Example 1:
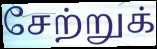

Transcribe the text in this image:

சேற்றுக்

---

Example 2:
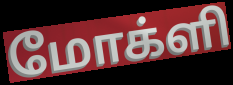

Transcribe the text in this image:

மோக்ளி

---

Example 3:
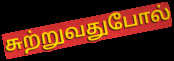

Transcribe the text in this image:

சுற்றுவதுபோல்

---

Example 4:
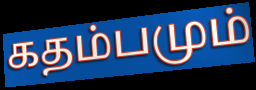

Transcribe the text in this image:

கதம்பமும்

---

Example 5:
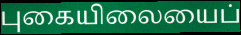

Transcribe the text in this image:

புகையிலையைப்